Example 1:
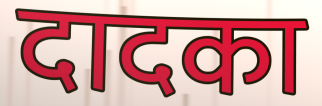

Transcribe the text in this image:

दादका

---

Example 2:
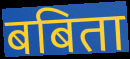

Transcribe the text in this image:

बबिता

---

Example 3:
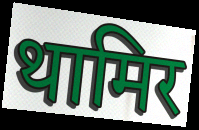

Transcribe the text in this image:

थामिर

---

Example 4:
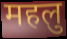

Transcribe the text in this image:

महलु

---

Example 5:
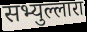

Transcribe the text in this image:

सभ्युल्लारा